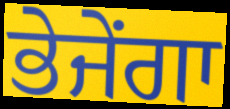
ਭੇਜੇਂਗਾ